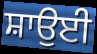
ਸ਼ਾਉਈ